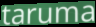
taruma